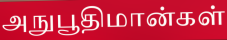
அநுபூதிமான்கள்